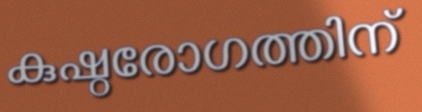
കുഷ്ഠരോഗത്തിന്